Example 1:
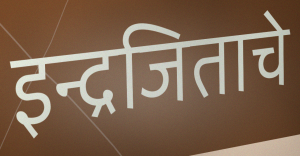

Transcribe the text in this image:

इन्द्रजिताचे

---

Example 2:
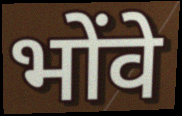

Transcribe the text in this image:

भोंवे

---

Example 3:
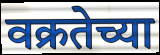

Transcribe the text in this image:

वक्रतेच्या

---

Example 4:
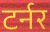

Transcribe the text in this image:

टर्नर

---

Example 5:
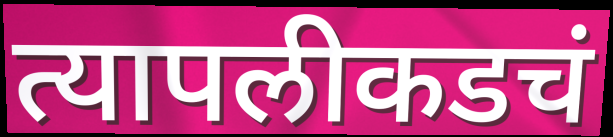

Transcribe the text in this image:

त्यापलीकडचं